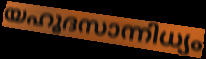
യഹൂദസാന്നിധ്യം